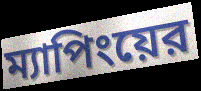
ম্যাপিংয়ের